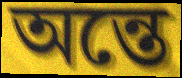
অন্তে